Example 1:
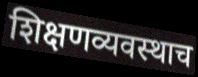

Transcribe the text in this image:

शिक्षणव्यवस्थाच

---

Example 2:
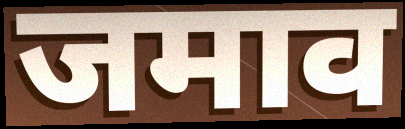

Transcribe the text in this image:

जमाव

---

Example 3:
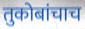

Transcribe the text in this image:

तुकोबांचाच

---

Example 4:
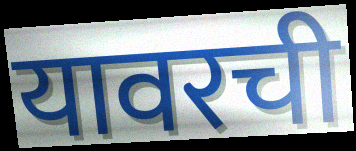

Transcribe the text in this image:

यावरची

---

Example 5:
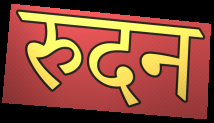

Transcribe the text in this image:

रुदन